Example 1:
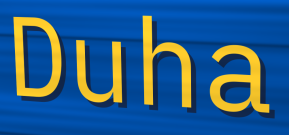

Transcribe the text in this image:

Duha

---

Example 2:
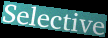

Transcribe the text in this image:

Selective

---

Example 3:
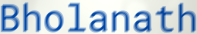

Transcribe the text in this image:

Bholanath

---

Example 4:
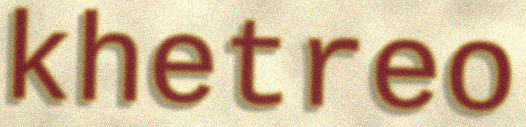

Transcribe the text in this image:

khetreo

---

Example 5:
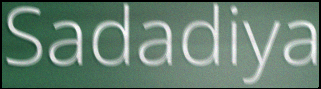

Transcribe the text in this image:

Sadadiya